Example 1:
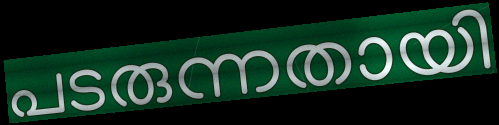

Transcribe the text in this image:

പടരുന്നതായി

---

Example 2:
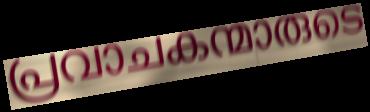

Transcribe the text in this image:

പ്രവാചകന്മാരുടെ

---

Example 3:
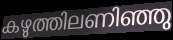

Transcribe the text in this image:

കഴുത്തിലണിഞ്ഞു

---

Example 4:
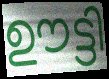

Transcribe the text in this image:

ഊട്ടി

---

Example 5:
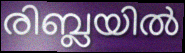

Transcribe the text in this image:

രിബ്ലയിൽ